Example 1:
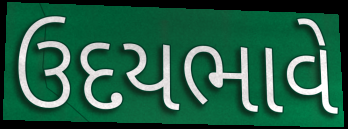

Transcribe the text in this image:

ઉદયભાવે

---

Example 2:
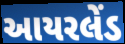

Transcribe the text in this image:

આયરલેંડ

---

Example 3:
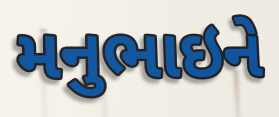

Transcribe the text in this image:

મનુભાઇને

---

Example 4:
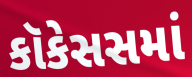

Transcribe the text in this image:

કૉકેસસમાં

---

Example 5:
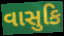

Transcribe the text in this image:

વાસુકિ